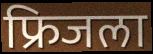
फ्रिजला